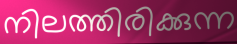
നിലത്തിരിക്കുന്ന